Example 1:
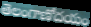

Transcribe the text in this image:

తెలంగాణోదయం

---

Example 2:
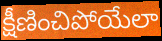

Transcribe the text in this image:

క్షీణించిపోయేలా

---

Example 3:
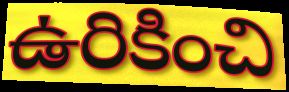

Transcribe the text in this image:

ఉరికించి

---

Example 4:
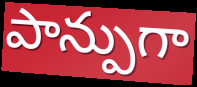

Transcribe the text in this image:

పాన్పుగా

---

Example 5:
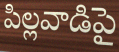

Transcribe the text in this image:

పిల్లవాడిపై